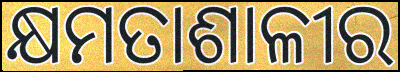
କ୍ଷମତାଶାଳୀର